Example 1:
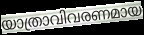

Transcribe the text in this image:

യാത്രാവിവരണമായ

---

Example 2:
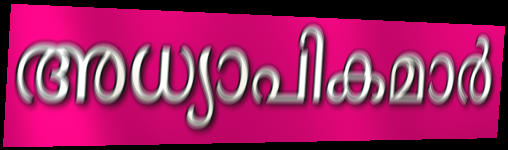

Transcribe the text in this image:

അധ്യാപികമാർ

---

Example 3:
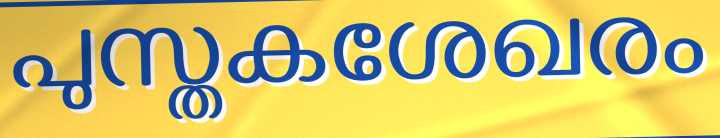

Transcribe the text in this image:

പുസ്തകശേഖരം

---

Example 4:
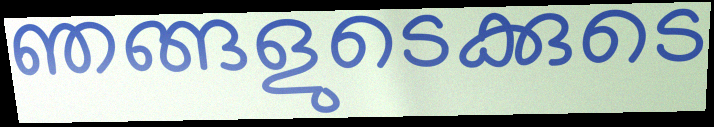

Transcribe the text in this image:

ഞങ്ങളുടെക്കുടെ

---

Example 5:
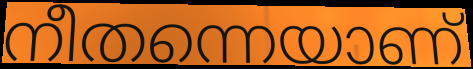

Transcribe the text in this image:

നീതന്നെയാണ്